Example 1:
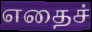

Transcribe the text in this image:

எதைச்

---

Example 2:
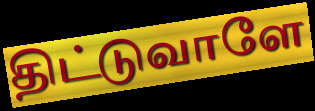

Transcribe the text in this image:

திட்டுவாளே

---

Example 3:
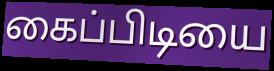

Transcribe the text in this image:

கைப்பிடியை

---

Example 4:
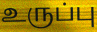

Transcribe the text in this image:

உருப்பு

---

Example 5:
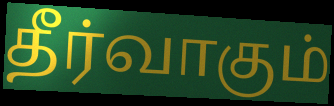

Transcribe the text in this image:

தீர்வாகும்